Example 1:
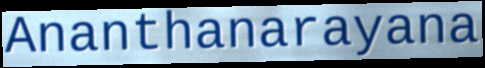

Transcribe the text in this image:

Ananthanarayana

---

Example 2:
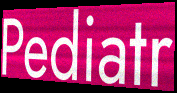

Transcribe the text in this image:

Pediatr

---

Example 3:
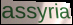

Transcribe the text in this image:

assyria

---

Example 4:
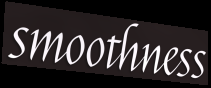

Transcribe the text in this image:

smoothness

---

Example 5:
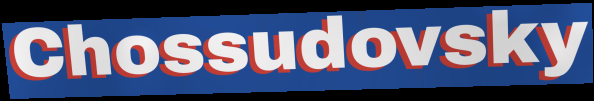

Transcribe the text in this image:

Chossudovsky